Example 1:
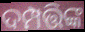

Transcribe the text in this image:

ଦମ୍ପତ୍ତିଙ୍କ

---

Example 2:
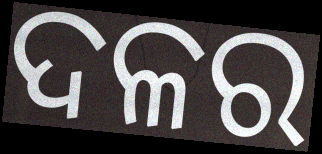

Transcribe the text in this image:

ଦଳର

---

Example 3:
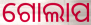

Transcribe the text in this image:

ଗୋଲାପ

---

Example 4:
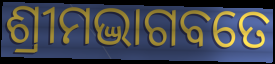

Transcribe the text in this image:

ଶ୍ରୀମଦ୍ଭାଗବତେ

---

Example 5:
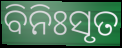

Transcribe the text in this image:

ବିନିଃସୃତ